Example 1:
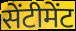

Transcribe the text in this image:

सेंटीमेंट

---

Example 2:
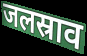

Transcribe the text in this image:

जलस्राव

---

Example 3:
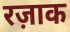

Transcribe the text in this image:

रज़ाक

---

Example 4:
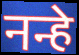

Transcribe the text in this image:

नन्हे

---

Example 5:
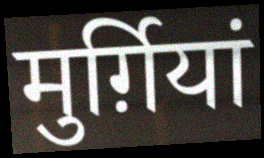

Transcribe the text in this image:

मुर्ग़ियां